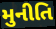
મુનીતિ